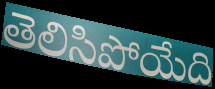
తెలిసిపోయేది